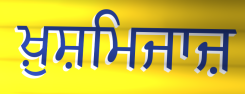
ਖ਼ੁਸ਼ਮਿਜਾਜ਼